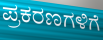
ಪ್ರಕರಣಗಳಿಗೆ